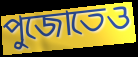
পুজোতেও